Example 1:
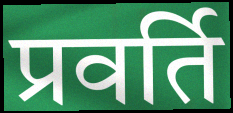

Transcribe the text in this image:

प्रवर्ति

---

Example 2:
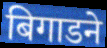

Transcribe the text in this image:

बिगाडने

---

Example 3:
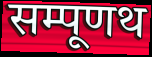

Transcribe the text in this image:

सम्पूणथ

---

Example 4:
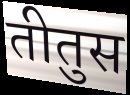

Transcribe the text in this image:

तीतुस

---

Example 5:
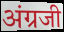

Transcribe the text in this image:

अंग्रजी